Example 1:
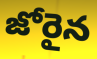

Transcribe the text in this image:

జోరైన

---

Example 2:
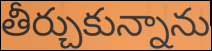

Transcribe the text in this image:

తీర్చుకున్నాను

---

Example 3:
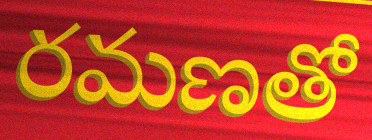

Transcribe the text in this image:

రమణతో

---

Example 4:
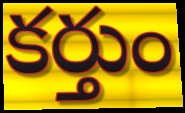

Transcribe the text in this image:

కర్తుం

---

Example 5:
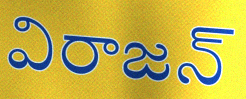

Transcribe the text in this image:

విరాజన్